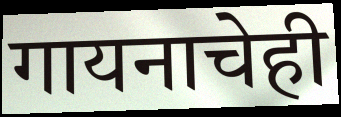
गायनाचेही